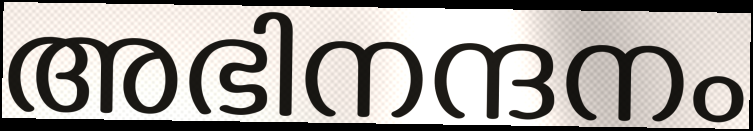
അഭിനന്ദനം